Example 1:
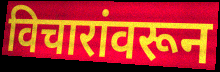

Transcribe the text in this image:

विचारांवरून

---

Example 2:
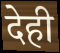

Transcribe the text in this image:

देही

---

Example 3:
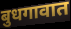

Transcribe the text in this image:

बुधगावात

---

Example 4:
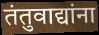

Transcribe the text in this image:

तंतुवाद्यांना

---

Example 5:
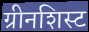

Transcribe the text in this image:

ग्रीनशिस्ट